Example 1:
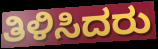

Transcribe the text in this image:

ತಿಳಿಸಿದರು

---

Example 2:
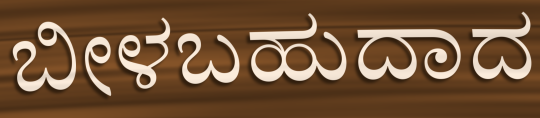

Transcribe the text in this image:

ಬೀಳಬಹುದಾದ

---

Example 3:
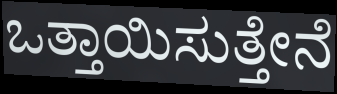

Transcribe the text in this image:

ಒತ್ತಾಯಿಸುತ್ತೇನೆ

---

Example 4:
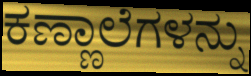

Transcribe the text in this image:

ಕಣ್ಣಾಲೆಗಳನ್ನು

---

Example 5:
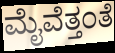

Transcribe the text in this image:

ಮೈವೆತ್ತಂತೆ